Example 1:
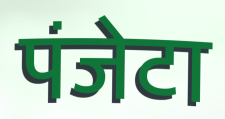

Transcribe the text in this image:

पंजेटा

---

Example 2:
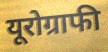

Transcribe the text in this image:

यूरोग्राफी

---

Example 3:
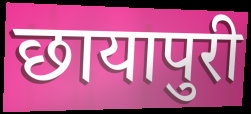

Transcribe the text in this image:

छायापुरी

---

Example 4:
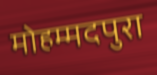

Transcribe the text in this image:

मोहम्मदपुरा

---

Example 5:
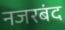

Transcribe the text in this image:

नजरबंद